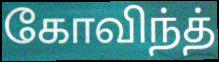
கோவிந்த்